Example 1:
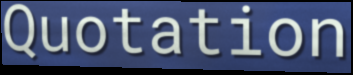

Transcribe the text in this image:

Quotation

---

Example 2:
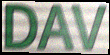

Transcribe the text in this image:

DAV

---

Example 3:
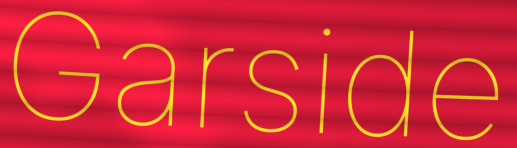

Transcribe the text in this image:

Garside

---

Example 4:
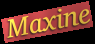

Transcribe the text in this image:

Maxine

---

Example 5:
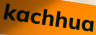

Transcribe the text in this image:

kachhua